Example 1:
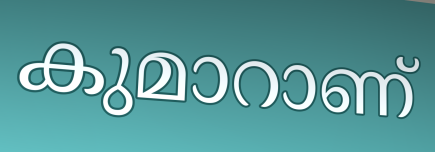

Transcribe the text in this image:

കുമാറാണ്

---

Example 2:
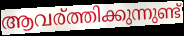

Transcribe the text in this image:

ആവര്ത്തിക്കുന്നുണ്ട്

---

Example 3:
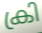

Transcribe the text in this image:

ക്രി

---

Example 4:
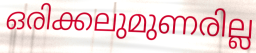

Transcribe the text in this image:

ഒരിക്കലുമുണരില്ല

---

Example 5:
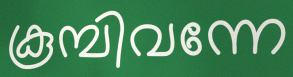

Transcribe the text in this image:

കൂമ്പിവന്നേ